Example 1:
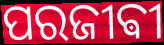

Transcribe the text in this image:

ପରଜୀଵୀ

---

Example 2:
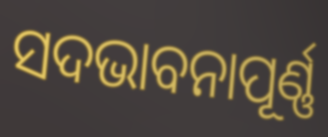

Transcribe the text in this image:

ସଦଭାବନାପୂର୍ଣ୍ଣ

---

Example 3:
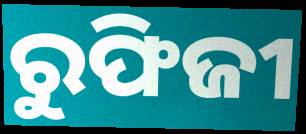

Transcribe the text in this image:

ରୁଫିଜୀ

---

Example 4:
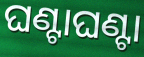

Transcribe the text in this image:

ଘଣ୍ଟାଘଣ୍ଟା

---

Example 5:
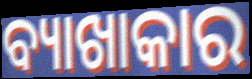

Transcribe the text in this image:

ବ୍ୟାଖାକାର